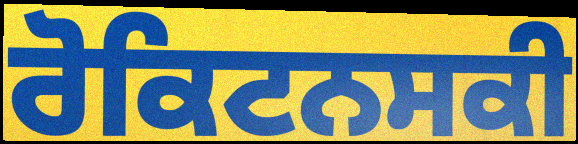
ਰੋਕਿਟਨਸਕੀ